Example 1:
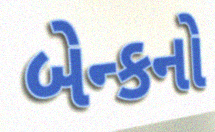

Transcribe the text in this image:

બેન્કનો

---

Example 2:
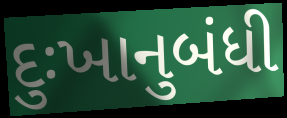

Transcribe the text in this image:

દુઃખાનુબંધી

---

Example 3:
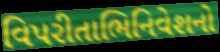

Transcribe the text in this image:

વિપરીતાભિનિવેશનો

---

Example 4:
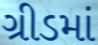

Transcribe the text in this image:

ગ્રીડમાં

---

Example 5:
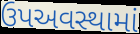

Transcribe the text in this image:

ઉપઅવસ્થામાં